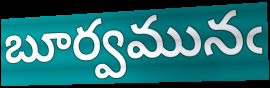
బూర్వమునఁ